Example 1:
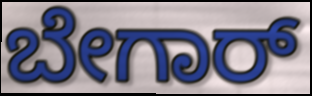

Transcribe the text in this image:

ಬೇಗಾರ್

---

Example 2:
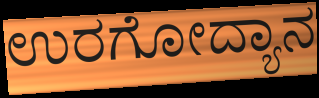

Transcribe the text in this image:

ಉರಗೋದ್ಯಾನ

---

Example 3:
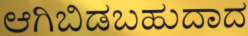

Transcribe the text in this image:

ಆಗಿಬಿಡಬಹುದಾದ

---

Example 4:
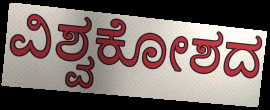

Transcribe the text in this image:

ವಿಶ್ವಕೋಶದ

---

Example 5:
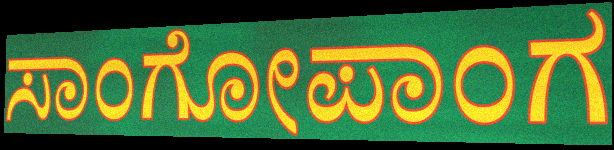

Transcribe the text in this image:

ಸಾಂಗೋಪಾಂಗ